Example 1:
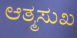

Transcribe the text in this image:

ಆತ್ಮಸುಖ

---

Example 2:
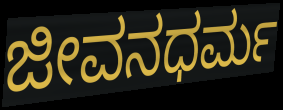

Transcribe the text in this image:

ಜೀವನಧರ್ಮ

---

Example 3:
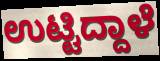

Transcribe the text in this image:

ಉಟ್ಟಿದ್ದಾಳೆ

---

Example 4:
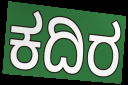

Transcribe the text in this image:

ಕದಿರ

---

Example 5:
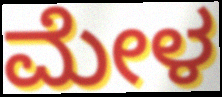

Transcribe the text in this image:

ಮೇಳ